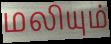
மலியும்